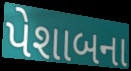
પેશાબના